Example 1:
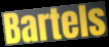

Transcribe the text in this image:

Bartels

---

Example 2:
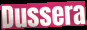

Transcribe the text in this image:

Dussera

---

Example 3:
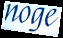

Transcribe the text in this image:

noge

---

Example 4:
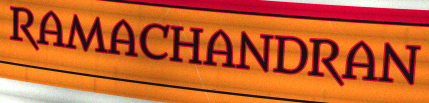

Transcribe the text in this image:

RAMACHANDRAN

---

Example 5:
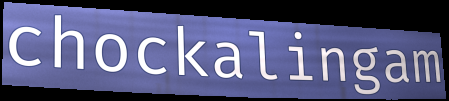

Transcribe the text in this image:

chockalingam